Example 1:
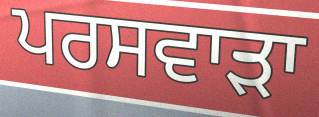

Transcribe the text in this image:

ਪਰਸਵਾੜਾ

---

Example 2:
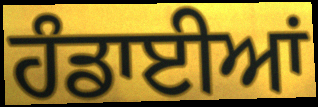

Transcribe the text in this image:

ਹੰਡਾਈਆਂ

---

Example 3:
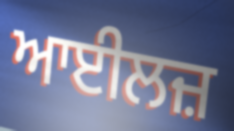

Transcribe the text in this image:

ਆਈਲਜ਼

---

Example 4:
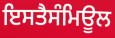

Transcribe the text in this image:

ਇਸਤੈਸੰਮਿਊਲ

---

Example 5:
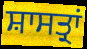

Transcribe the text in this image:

ਸ਼ਾਸਤ੍ਰਾਂ